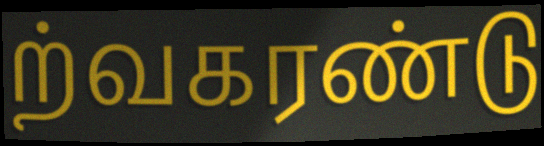
ற்வகரண்டு